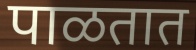
पाळतात